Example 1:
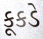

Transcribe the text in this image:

કૂકડે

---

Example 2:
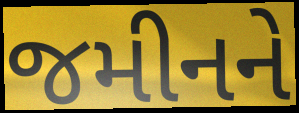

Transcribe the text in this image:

જમીનને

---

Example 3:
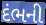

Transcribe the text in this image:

દંભની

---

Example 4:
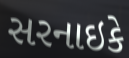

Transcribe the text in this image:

સરનાઇકે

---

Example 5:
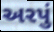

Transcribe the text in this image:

અરપું